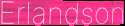
Erlandson